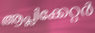
ആപ്ലിക്കേറ്റർ